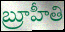
బ్రూహీతి